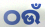
ଠଉଁ